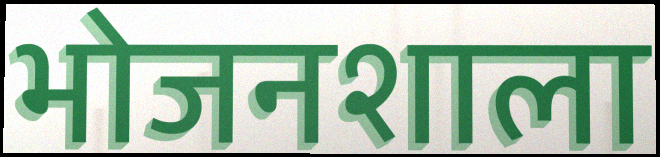
भोजनशाला